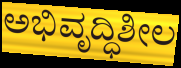
ಅಭಿವೃದ್ಧಿಶೀಲ